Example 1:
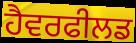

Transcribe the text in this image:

ਹੈਵਰਫੀਲਡ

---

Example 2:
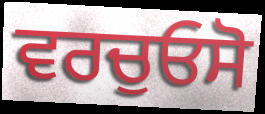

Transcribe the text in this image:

ਵਰਚੁਓਸੋ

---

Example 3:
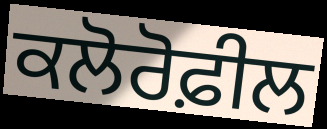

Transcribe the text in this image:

ਕਲੋਰੋਫ਼ੀਲ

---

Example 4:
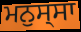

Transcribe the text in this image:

ਮਨੁਸ੍ਸਾ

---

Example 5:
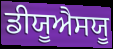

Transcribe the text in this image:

ਡੀਯੂਐਸਯੂ